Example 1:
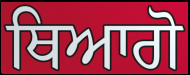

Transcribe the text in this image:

ਥਿਆਗੋ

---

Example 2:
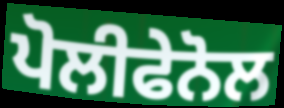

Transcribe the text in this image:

ਪੋਲੀਫੇਨੋਲ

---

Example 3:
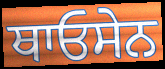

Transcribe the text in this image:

ਥਾਓਸੇਨ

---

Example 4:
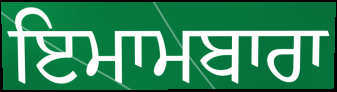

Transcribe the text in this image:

ਇਮਾਮਬਾਰਾ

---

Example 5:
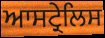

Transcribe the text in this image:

ਆਸਟ੍ਰੇਲਿਸ